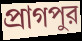
প্রাগপুর